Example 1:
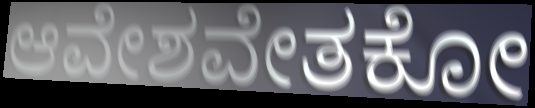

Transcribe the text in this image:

ಆವೇಶವೇತಕೋ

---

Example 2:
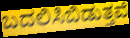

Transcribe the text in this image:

ಬದಲಿಸಿಬಿಡುತ್ತವೆ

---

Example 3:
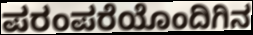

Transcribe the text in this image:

ಪರಂಪರೆಯೊಂದಿಗಿನ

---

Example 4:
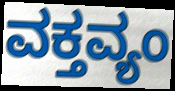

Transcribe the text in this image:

ವಕ್ತವ್ಯಂ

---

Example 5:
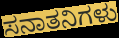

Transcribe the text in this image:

ಸನಾತನಿಗಳು